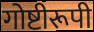
गोष्टीरूपी